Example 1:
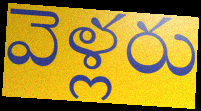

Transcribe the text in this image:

వెళ్లరు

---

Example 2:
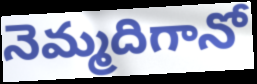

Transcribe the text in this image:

నెమ్మదిగానో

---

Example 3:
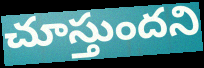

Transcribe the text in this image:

చూస్తుందని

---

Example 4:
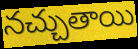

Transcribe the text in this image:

నచ్చుతాయి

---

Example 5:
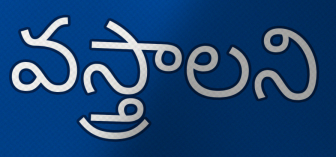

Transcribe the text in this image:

వస్త్రాలని